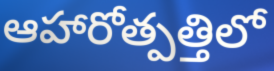
ఆహారోత్పత్తిలో